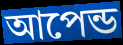
আপেন্ড